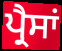
ਪ੍ਰੈਸਾਂ